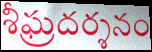
శీఘ్రదర్శనం